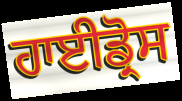
ਹਾਈਡ੍ਰੋਸ